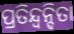
ପ୍ରତିନ୍ଦ୍ବନ୍ଦିତା